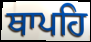
ਥਾਪਹਿ